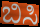
ಬಿಸಿ